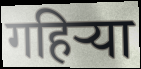
गहिऱ्या